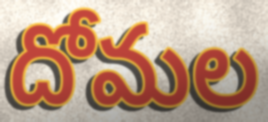
దోమల